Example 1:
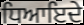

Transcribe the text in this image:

ਧਿਆਇਦੇ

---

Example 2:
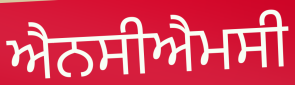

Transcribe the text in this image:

ਐਨਸੀਐਮਸੀ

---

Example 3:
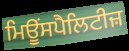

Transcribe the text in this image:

ਮਿਊਂਸਪੈਲਿਟੀਜ਼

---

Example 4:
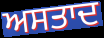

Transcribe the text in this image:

ਅਸਤਾਦ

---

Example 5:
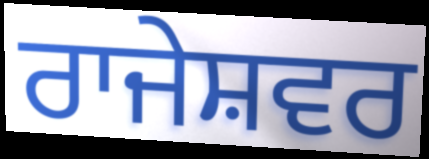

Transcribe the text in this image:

ਰਾਜੇਸ਼ਵਰ